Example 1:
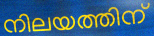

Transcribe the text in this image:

നിലയത്തിന്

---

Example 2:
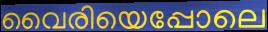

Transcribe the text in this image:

വൈരിയെപ്പോലെ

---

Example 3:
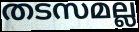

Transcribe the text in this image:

തടസമല്ല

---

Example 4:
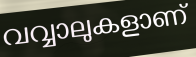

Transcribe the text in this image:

വവ്വാലുകളാണ്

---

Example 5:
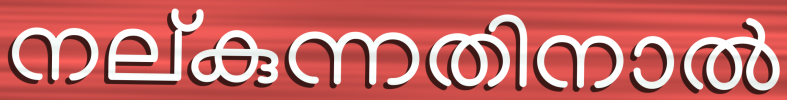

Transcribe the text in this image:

നല്കുന്നതിനാൽ